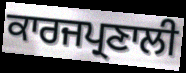
ਕਾਰਜਪ੍ਰਣਾਲੀ